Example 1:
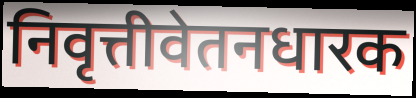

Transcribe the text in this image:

निवृत्तीवेतनधारक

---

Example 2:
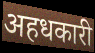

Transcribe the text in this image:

अहधकारी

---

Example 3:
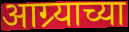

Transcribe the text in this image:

आग्र्याच्या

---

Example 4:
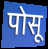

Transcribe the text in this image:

पोसू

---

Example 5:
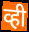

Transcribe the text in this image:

व्ही